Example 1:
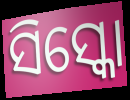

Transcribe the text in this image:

ସିସ୍କୋ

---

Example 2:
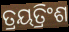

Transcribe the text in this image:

ତ୍ରୟତ୍ରିଂଶ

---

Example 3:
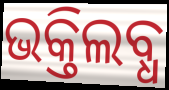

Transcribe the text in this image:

ଭକ୍ତିଲବ୍ଧ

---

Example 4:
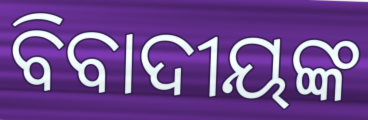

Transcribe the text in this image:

ବିବାଦୀୟଙ୍କ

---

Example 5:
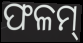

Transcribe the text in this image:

ଫଳମ୍